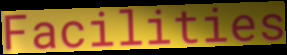
Facilities